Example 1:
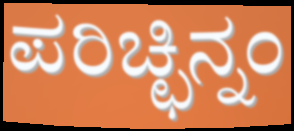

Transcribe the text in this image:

ಪರಿಚ್ಛಿನ್ನಂ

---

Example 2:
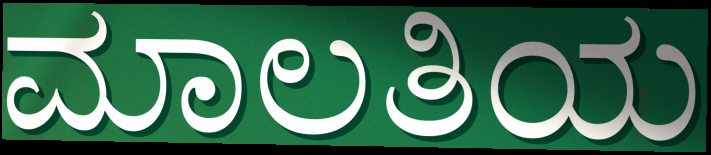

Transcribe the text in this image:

ಮಾಲತಿಯ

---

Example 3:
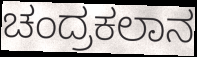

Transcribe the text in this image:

ಚಂದ್ರಕಲಾನ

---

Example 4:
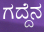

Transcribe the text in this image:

ಗದ್ದೆನ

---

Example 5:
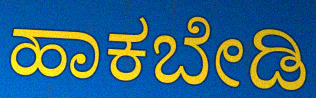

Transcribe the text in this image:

ಹಾಕಬೇಡಿ